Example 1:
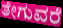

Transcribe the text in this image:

ತೇಗುವರೆ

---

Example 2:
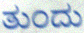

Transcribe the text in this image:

ತುಂದು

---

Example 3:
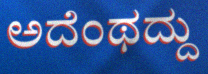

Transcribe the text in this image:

ಅದೆಂಥದ್ದು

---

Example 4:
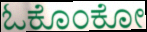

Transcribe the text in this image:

ಓಕೊಂಕೋ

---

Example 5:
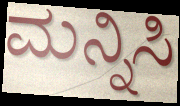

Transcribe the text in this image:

ಮನ್ನಿಸಿ